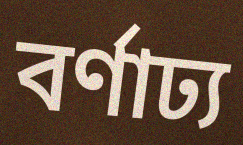
বর্ণাঢ্য